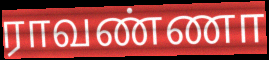
ராவண்ணா